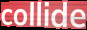
collide